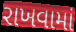
રાખવામાં